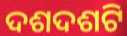
ଦଶଦଶଟି